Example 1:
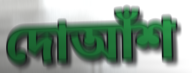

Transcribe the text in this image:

দোআঁশ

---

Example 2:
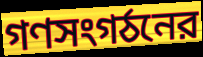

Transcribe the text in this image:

গণসংগঠনের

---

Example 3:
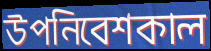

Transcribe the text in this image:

উপনিবেশকাল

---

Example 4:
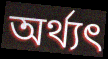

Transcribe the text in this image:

অর্থ্যৎ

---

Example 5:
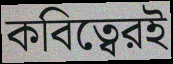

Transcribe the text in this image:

কবিত্বেরই